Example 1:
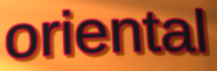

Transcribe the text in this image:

oriental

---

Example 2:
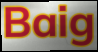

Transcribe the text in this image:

Baig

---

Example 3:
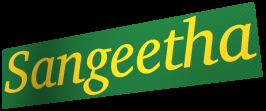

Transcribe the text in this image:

Sangeetha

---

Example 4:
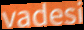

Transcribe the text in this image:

vadesi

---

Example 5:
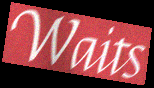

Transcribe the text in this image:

Waits